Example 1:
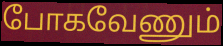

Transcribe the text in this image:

போகவேணும்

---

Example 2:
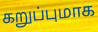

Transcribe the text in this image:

கறுப்புமாக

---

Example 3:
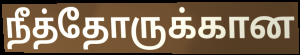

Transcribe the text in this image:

நீத்தோருக்கான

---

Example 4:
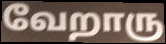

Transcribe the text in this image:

வேறாரு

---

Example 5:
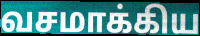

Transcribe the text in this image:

வசமாக்கிய